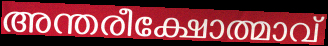
അന്തരീക്ഷോത്മാവ്